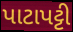
પાટાપટ્ટી